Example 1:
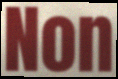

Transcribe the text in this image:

Non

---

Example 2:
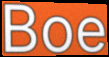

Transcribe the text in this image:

Boe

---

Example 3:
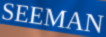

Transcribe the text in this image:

SEEMAN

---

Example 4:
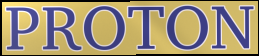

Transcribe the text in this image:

PROTON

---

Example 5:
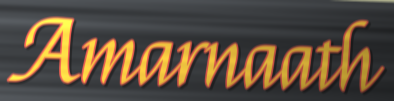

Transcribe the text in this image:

Amarnaath